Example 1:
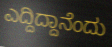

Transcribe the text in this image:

ಎದ್ದಿದ್ದಾನೆಂದು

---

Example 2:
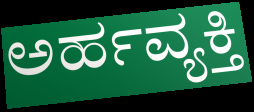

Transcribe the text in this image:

ಅರ್ಹವ್ಯಕ್ತಿ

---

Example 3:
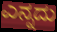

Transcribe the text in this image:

ಎನ್ನದು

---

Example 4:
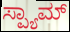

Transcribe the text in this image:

ಸ್ಪ್ಯಾಮ್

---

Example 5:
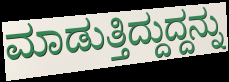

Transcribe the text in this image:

ಮಾಡುತ್ತಿದ್ದುದ್ದನ್ನು